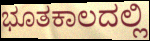
ಭೂತಕಾಲದಲ್ಲಿ